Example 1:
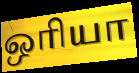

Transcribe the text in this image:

ஒரியா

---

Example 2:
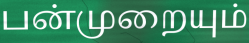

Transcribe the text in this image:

பன்முறையும்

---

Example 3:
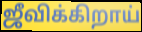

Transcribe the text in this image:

ஜீவிக்கிறாய்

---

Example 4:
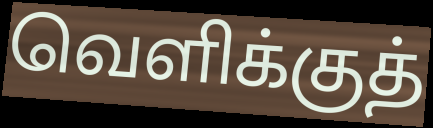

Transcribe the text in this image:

வெளிக்குத்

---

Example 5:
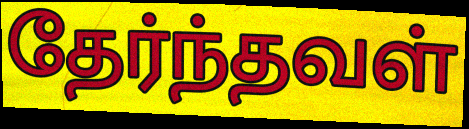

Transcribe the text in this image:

தேர்ந்தவள்